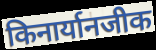
किनार्यानजीक